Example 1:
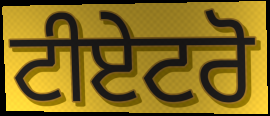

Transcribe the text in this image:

ਟੀਏਟਰੋ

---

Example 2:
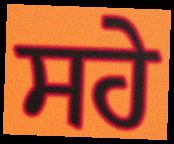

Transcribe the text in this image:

ਸਹੇ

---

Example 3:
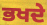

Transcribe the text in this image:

ਭਖਦੇ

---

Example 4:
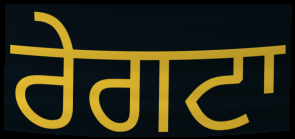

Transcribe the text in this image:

ਰੇਗਟਾ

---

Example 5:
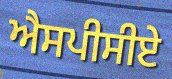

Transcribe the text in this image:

ਐਸਪੀਸੀਏ